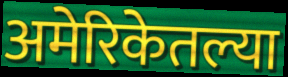
अमेरिकेतल्या